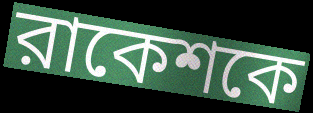
রাকেশকে